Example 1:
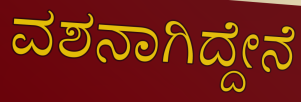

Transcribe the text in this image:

ವಶನಾಗಿದ್ದೇನೆ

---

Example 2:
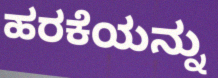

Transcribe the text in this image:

ಹರಕೆಯನ್ನು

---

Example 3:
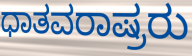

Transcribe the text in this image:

ಧಾತವರಾಷ್ರರು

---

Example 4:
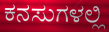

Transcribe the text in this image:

ಕನಸುಗಳಲ್ಲಿ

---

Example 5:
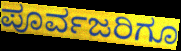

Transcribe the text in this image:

ಪೂರ್ವಜರಿಗೂ